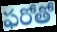
ఫరోతో